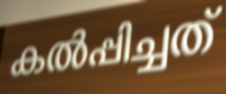
കൽപ്പിച്ചത്